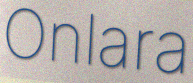
Onlara